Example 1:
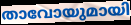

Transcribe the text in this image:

താവോയുമായി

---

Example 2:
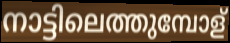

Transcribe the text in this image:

നാട്ടിലെത്തുമ്പോള്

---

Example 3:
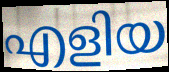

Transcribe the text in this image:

എളിയ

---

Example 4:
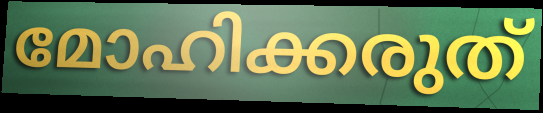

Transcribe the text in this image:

മോഹിക്കരുത്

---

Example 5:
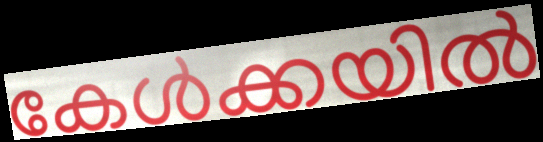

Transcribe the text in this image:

കേൾക്കയിൽ